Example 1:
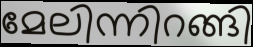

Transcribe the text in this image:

മേലിന്നിറങ്ങി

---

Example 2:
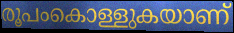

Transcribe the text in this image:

രൂപംകൊള്ളുകയാണ്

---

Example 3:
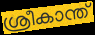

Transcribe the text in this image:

ശ്രീകാന്ത്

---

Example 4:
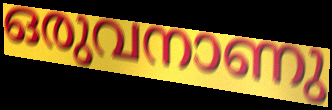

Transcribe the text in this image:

ഒരുവനാണു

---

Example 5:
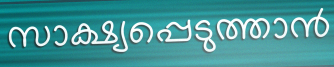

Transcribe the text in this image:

സാക്ഷ്യപ്പെടുത്താൻ